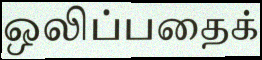
ஒலிப்பதைக்